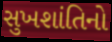
સુખશાંતિનો